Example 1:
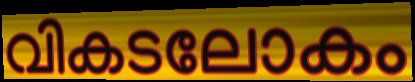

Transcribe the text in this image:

വികടലോകം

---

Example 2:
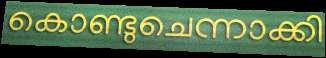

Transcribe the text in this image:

കൊണ്ടുചെന്നാക്കി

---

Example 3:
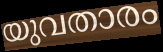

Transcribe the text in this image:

യുവതാരം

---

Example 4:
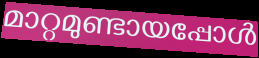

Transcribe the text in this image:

മാറ്റമുണ്ടായപ്പോൾ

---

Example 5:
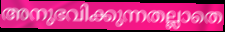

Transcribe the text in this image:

അനുഭവിക്കുന്നതല്ലാതെ